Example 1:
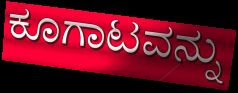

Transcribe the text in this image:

ಕೂಗಾಟವನ್ನು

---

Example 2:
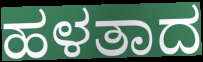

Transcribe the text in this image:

ಹಳತಾದ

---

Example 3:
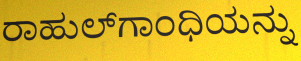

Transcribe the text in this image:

ರಾಹುಲ್‌ಗಾಂಧಿಯನ್ನು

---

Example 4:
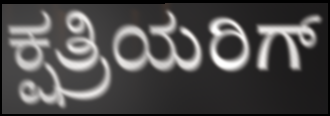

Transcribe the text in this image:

ಕ್ಷತ್ರಿಯರಿಗ್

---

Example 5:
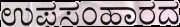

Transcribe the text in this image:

ಉಪಸಂಹಾರದ